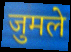
जुमले